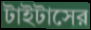
টাইটাসের